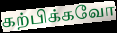
கற்பிக்கவோ